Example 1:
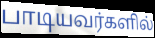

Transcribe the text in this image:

பாடியவர்களில்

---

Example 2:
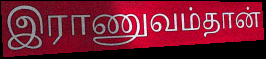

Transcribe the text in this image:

இராணுவம்தான்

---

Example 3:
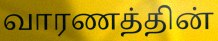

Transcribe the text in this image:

வாரணத்தின்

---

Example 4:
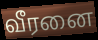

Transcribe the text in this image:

வீரனை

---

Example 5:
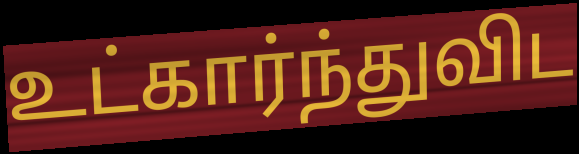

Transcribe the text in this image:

உட்கார்ந்துவிட